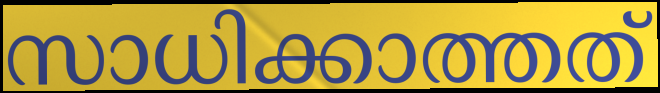
സാധിക്കാത്തത്